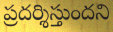
ప్రదర్శిస్తుందని